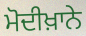
ਮੋਦੀਖ਼ਾਨੇ